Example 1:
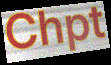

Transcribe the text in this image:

Chpt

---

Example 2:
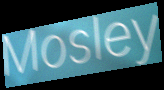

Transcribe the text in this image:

Mosley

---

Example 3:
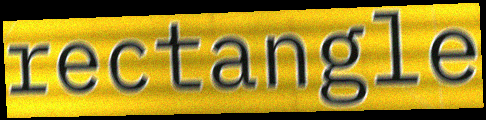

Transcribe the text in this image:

rectangle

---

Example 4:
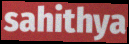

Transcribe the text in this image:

sahithya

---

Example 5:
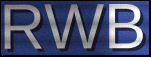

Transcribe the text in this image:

RWB